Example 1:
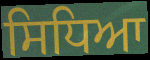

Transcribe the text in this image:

ਸਿਧਿਆ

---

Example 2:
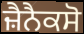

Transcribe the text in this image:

ਜ਼ੈਨੈਕਸੋ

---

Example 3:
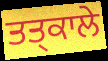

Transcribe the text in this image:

ਤਤ੍ਕਾਲੇ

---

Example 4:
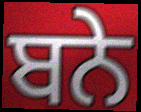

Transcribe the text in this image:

ਬਨੇ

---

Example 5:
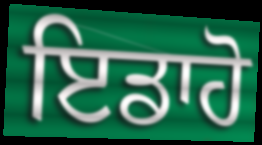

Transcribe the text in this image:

ਇਡਾਹੋ